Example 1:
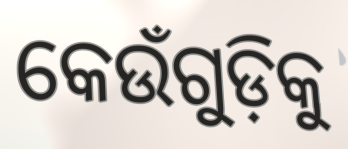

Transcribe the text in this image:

କେଉଁଗୁଡ଼ିକୁ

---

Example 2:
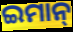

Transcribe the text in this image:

ଇମାନ୍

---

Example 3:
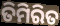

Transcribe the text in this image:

ତିମିରିତ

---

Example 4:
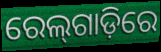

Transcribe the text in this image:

ରେଲ୍‌ଗାଡ଼ିରେ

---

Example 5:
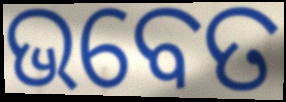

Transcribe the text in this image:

ଭବେତ